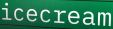
icecream